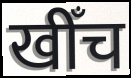
खीँच